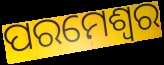
ପରମେଶ୍ବର